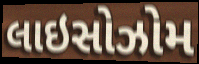
લાઇસોઝોમ